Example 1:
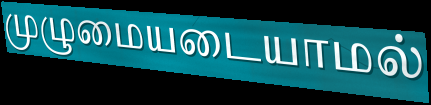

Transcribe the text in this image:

முழுமையடையாமல்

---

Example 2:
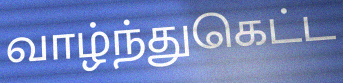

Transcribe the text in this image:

வாழ்ந்துகெட்ட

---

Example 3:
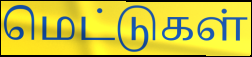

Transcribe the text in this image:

மெட்டுகள்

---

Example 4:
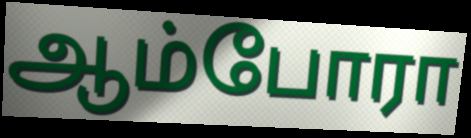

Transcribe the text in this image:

ஆம்போரா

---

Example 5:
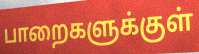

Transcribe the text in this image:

பாறைகளுக்குள்